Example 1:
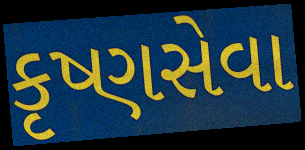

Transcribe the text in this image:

કૃષ્ણસેવા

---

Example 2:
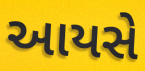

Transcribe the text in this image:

આયસે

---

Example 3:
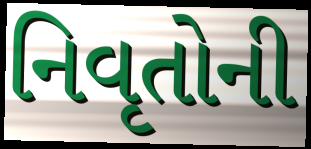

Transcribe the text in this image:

નિવૃતોની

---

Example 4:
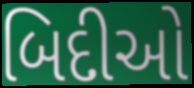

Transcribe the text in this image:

બિદીઓ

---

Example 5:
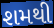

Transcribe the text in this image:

શમથી